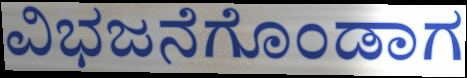
ವಿಭಜನೆಗೊಂಡಾಗ